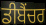
ਡੀਬੈਂਚਰ